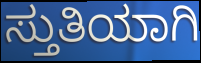
ಸ್ತುತಿಯಾಗಿ